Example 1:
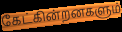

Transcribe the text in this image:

கேட்கின்றனகளும்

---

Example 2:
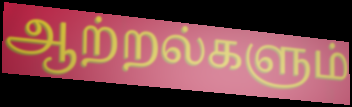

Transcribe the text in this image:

ஆற்றல்களும்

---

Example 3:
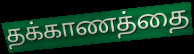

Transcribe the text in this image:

தக்காணத்தை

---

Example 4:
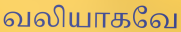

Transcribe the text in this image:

வலியாகவே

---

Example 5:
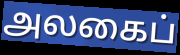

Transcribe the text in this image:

அலகைப்